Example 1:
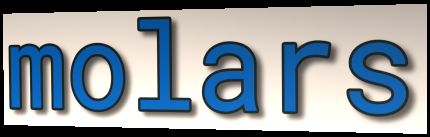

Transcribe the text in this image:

molars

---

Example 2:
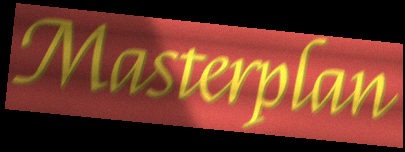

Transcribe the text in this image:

Masterplan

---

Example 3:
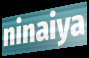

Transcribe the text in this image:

ninaiya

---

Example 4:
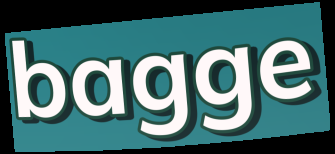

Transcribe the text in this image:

bagge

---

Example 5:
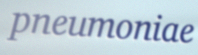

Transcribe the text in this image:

pneumoniae